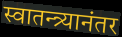
स्वातन्त्र्यानंतर